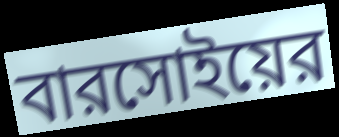
বারসোইয়ের